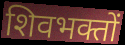
शिवभक्तों